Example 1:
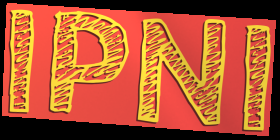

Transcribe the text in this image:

IPNI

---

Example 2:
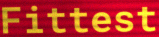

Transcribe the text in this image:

Fittest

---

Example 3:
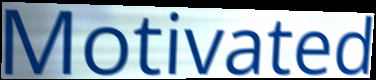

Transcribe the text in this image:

Motivated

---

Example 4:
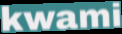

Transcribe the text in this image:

kwami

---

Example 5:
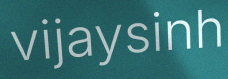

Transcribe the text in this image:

vijaysinh